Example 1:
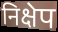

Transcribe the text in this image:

निक्षेप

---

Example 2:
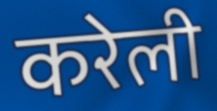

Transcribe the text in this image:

करेली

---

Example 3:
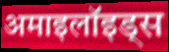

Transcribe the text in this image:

अमाइलॉइड्स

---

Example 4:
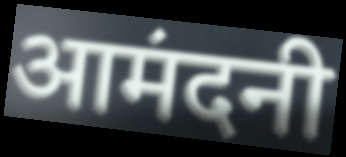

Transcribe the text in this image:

आमंदनी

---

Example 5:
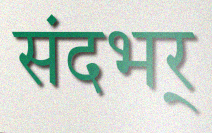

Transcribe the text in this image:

संदभर्